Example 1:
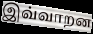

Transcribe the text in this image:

இவ்வாறன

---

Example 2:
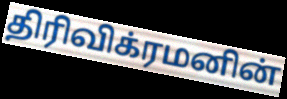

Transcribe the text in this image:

திரிவிக்ரமனின்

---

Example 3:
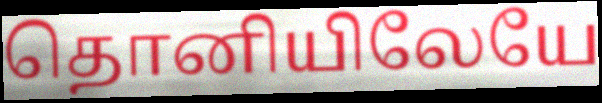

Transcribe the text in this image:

தொனியிலேயே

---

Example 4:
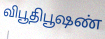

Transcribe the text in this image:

விபூதிபூஷண்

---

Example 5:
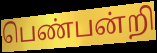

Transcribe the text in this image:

பெண்பன்றி